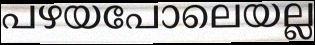
പഴയപോലെയല്ല